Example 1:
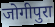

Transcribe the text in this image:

जोगीपुरा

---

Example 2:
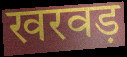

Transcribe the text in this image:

खरवड़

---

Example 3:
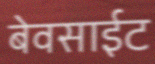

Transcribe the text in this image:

बेवसाईट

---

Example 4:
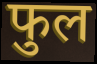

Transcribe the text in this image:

फुल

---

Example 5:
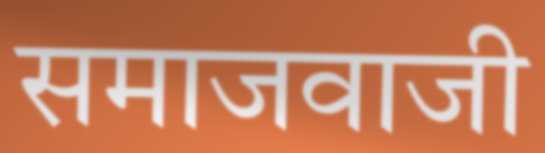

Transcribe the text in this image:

समाजवाजी